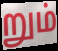
றும்